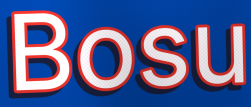
Bosu